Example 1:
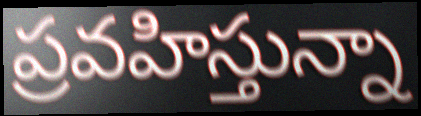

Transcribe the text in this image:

ప్రవహిస్తున్నా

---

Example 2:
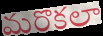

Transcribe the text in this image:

మరొకలా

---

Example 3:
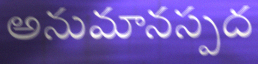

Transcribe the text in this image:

అనుమానస్పద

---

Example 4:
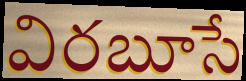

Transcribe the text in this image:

విరబూసే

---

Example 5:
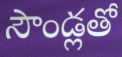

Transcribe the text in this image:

సౌండ్లతో